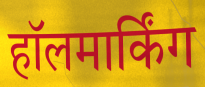
हॉलमार्किंग